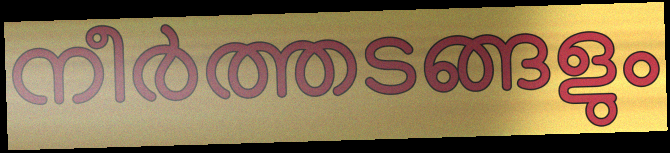
നീർത്തടങ്ങളും